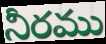
నీరము